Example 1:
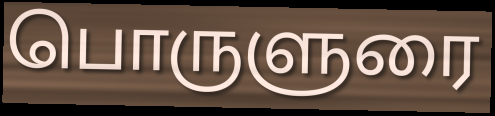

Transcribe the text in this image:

பொருளுரை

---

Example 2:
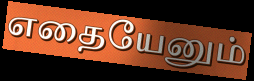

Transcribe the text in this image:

எதையேனும்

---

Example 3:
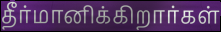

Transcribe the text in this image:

தீர்மானிக்கிறார்கள்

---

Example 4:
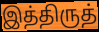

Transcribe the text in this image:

இத்திருத்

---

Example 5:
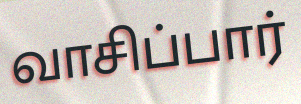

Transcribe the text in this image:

வாசிப்பார்